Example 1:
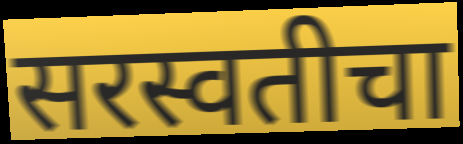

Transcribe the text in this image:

सरस्वतीचा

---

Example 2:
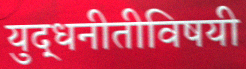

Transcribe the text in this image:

युद्धनीतीविषयी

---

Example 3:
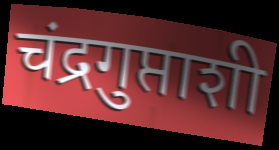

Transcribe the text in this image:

चंद्रगुप्ताशी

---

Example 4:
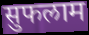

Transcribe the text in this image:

सुफलाम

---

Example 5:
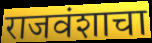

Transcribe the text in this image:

राजवंशाचा